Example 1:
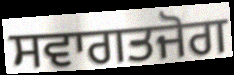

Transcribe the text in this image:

ਸਵਾਗਤਜੋਗ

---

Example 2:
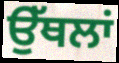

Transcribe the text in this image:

ਉੱਥਲਾਂ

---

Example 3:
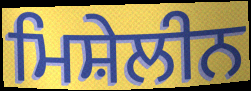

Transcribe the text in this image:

ਮਿਸ਼ੇਲੀਨ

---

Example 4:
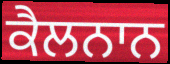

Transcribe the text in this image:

ਕੈਲਨਾਨ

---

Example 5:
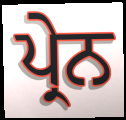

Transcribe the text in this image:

ਪ੍ਰੇਨ